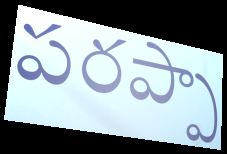
పరప్పా